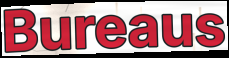
Bureaus